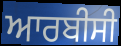
ਆਰਬੀਸੀ